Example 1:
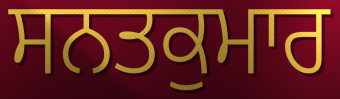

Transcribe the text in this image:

ਸਨਤਕੁਮਾਰ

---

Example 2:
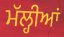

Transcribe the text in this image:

ਮੱਲ੍ਹੀਆਂ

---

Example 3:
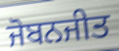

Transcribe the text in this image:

ਜੋਬਨਜੀਤ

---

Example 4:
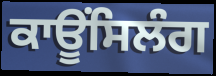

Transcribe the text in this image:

ਕਾਊਂਸਿਲੰਗ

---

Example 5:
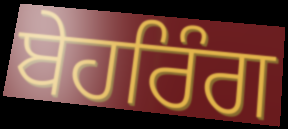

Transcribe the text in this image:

ਬੇਹਰਿੰਗ